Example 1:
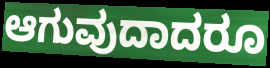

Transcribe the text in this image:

ಆಗುವುದಾದರೂ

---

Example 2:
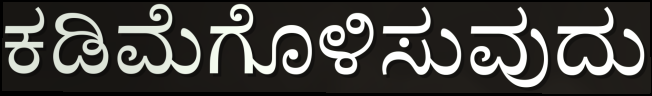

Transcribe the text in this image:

ಕಡಿಮೆಗೊಳಿಸುವುದು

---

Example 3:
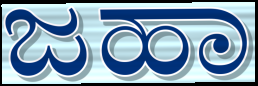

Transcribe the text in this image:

ಜಹಾ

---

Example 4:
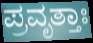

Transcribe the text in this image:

ಪ್ರವೃತ್ತಾಃ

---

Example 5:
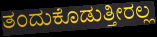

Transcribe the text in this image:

ತಂದುಕೊಡುತ್ತೀರಲ್ಲ